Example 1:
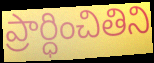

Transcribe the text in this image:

ప్రార్ధించితిని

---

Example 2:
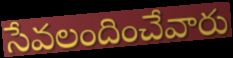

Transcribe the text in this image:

సేవలందించేవారు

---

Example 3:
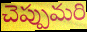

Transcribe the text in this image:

చెప్పుమరి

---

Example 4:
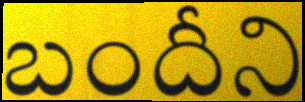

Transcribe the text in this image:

బందీని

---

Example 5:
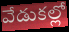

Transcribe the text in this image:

వేడుకల్లో